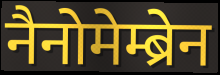
नैनोमेम्ब्रेन